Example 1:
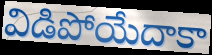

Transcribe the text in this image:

విడిపోయేదాకా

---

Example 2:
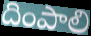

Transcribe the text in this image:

దింపాలి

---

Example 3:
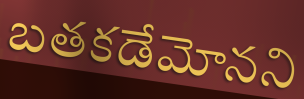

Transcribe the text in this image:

బతకడేమోనని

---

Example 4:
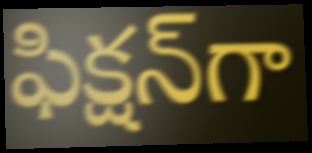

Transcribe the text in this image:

ఫిక్షన్‌గా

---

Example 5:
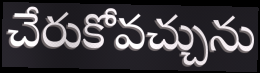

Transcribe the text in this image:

చేరుకోవచ్చును